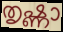
തൃഷ്ണാ